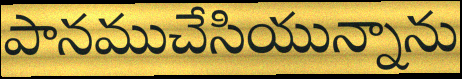
పానముచేసియున్నాను